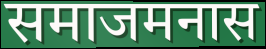
समाजमनास